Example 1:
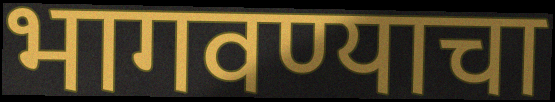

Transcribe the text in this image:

भागवण्याचा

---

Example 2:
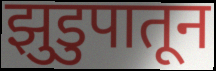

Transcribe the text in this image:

झुडुपातून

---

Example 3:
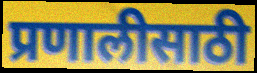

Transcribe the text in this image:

प्रणालीसाठी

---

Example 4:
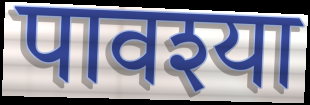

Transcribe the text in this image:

पावश्या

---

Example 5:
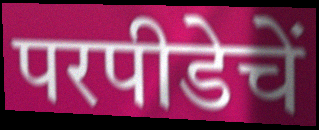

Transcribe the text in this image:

परपीडेचें